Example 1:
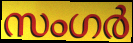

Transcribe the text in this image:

സംഗർ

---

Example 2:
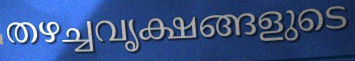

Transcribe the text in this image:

തഴച്ചവൃക്ഷങ്ങളുടെ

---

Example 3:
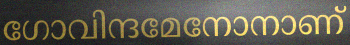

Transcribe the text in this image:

ഗോവിന്ദമേനോനാണ്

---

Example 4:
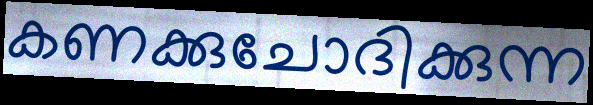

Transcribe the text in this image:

കണക്കുചോദിക്കുന്ന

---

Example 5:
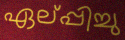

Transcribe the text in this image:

ഏല്പ്പിച്ചു